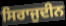
ਸਿਰਾਜੁਦੀਨ